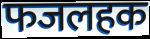
फजलहक